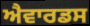
ਐਵਾਰਡਸ